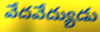
వేదవేద్యుడు